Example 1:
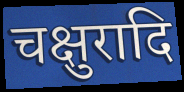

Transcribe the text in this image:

चक्षुरादि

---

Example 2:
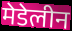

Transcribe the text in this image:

मेडेलीन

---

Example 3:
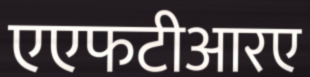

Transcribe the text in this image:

एएफटीआरए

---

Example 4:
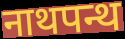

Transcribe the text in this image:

नाथपन्थ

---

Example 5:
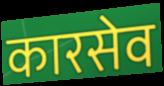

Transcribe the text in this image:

कारसेव